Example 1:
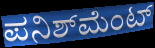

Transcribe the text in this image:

ಪನಿಶ್‌ಮೆಂಟ್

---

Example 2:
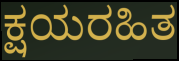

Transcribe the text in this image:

ಕ್ಷಯರಹಿತ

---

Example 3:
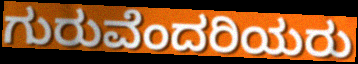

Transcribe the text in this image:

ಗುರುವೆಂದರಿಯರು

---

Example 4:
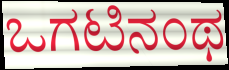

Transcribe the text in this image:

ಒಗಟಿನಂಥ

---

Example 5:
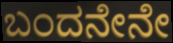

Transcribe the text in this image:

ಬಂದನೇನೇ